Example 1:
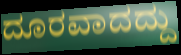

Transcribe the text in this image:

ದೂರವಾದದ್ದು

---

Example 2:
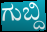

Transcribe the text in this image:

ಗುಬ್ದಿ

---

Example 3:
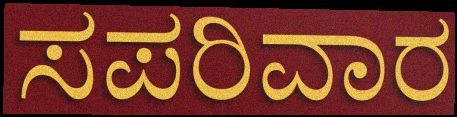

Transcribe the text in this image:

ಸಪರಿವಾರ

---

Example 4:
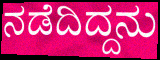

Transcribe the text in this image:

ನಡೆದಿದ್ದನು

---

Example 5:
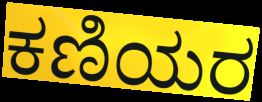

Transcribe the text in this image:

ಕಣಿಯರ